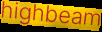
highbeam